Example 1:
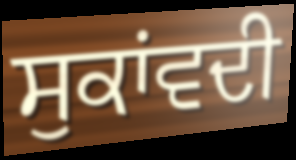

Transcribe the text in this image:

ਸੁਕਾਂਵਦੀ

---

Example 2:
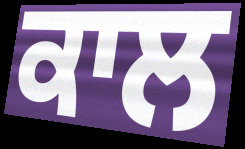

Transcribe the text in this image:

ਕਾਲ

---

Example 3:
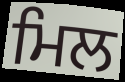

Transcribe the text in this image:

ਮਿਲ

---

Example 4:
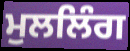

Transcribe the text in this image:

ਮੁਲਲਿੰਗ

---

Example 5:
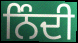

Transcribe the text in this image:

ਨਿੰਦੀ